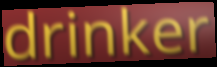
drinker